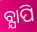
ବ୍ଯାପି